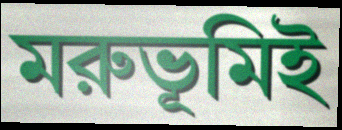
মরুভূমিই